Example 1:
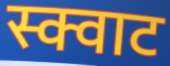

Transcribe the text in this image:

स्क्वाट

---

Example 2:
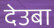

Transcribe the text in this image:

देउबा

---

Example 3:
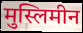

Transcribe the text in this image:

मुस्लिमीन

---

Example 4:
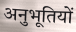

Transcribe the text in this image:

अनुभूतियों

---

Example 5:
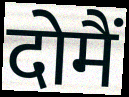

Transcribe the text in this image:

दोमैं